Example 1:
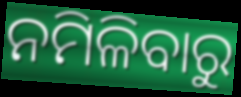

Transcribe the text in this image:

ନମିଳିବାରୁ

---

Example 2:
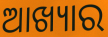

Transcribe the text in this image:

ଆଖ୍ୟାର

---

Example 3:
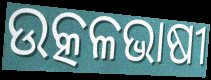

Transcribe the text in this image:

ଉତ୍କଳଭାଷୀ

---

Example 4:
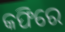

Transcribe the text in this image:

କଫିରେ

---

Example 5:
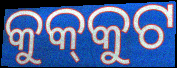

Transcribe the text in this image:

କୁକ୍‍କୁଟ